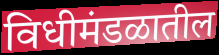
विधीमंडळातील